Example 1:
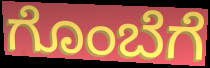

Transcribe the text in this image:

ಗೊಂಬೆಗೆ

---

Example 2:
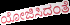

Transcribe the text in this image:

ಯೋಜಿಸಿದಂತೆ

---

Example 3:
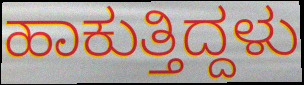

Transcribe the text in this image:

ಹಾಕುತ್ತಿದ್ದಳು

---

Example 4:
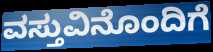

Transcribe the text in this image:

ವಸ್ತುವಿನೊಂದಿಗೆ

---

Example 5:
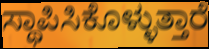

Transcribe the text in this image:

ಸ್ಥಾಪಿಸಿಕೊಳ್ಳುತ್ತಾರೆ